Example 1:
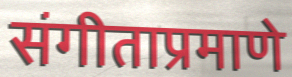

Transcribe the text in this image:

संगीताप्रमाणे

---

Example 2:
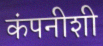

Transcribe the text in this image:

कंपनीशी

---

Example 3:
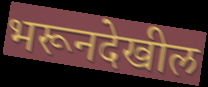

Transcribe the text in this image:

भरूनदेखील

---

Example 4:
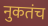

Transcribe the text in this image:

नुकतंच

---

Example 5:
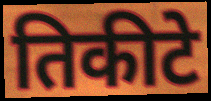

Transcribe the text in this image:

तिकीटे